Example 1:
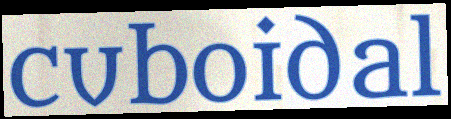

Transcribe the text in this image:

cuboidal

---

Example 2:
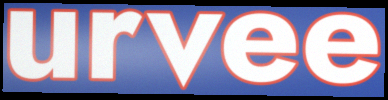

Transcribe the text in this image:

urvee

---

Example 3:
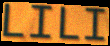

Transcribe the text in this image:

LILI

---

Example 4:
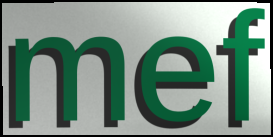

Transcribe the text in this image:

mef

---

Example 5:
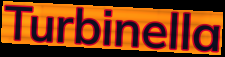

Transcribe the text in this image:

Turbinella